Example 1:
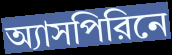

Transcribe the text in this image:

অ্যাসপিরিনে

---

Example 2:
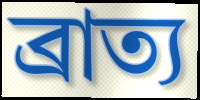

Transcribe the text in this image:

ব্রাত্য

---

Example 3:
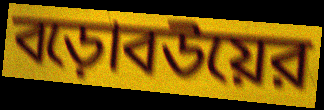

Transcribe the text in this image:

বড়োবউয়ের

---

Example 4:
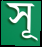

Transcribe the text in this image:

সূ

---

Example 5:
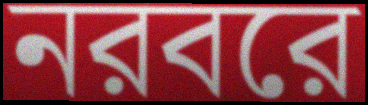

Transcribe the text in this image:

নরবরে